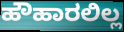
ಹೌಹಾರಲಿಲ್ಲ